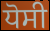
ਧੋਸੀ